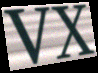
vx